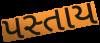
પસ્તાય